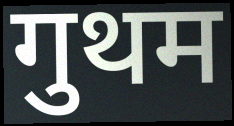
गुथम